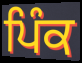
ਪਿੰਕ